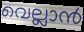
വെല്ലാൻ